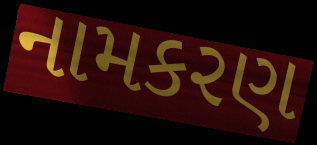
નામકરણ